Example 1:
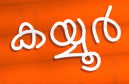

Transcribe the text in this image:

കയ്യൂർ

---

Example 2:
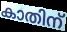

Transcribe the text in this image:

കാതിന്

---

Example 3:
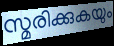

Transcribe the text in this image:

സ്മരിക്കുകയും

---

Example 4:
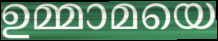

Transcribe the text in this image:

ഉമ്മാമയെ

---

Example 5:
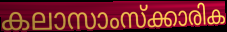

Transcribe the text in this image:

കലാസാംസ്ക്കാരിക